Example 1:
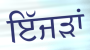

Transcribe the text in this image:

ਇੱਜੜਾਂ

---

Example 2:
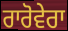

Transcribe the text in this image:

ਰਾਰੋਵੇਰਾ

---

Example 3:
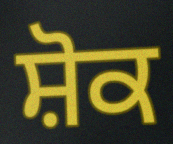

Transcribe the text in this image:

ਸ਼ੋਕ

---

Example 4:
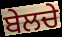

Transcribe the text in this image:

ਬੇਲਚੇ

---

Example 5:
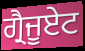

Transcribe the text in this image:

ਗ੍ਰੈਜੂਏਟ